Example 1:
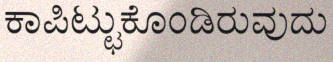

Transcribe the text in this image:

ಕಾಪಿಟ್ಟುಕೊಂಡಿರುವುದು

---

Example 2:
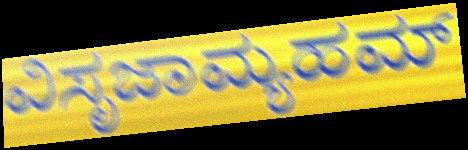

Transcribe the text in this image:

ವಿಸೃಜಾಮ್ಯಹಮ್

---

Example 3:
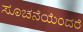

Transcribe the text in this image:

ಸೂಚನೆಯೆಂದರೆ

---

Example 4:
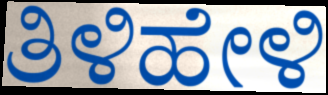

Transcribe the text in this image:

ತಿಳಿಹೇಳಿ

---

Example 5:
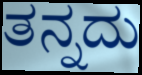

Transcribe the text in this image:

ತನ್ನದು